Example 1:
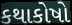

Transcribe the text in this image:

કથાકોષો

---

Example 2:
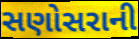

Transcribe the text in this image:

સણોસરાની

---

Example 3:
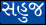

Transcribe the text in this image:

સહુજ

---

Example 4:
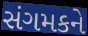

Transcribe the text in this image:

સંગમકને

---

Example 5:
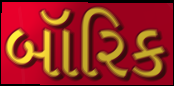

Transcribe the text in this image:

બૉરિક